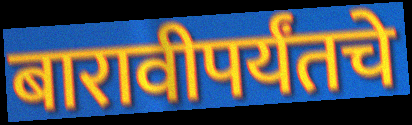
बारावीपर्यंतचे